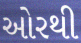
ઓરથી